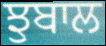
ਝੁਬਾਲ